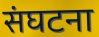
संघटना